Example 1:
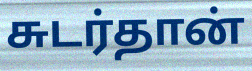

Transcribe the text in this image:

சுடர்தான்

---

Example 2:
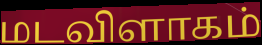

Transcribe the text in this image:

மடவிளாகம்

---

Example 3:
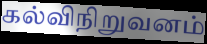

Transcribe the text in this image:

கல்விநிறுவனம்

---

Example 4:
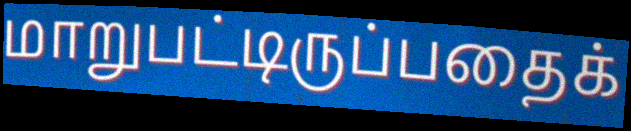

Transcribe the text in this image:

மாறுபட்டிருப்பதைக்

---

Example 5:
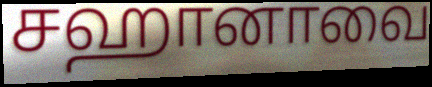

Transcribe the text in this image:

சஹானாவை